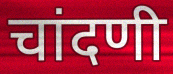
चांदणी